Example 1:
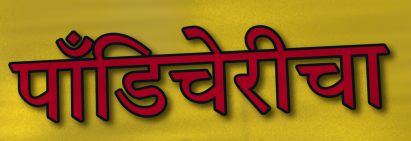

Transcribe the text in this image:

पाँडिचेरीचा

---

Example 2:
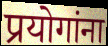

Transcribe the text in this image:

प्रयोगांना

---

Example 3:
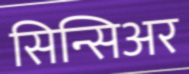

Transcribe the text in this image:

सिन्सिअर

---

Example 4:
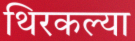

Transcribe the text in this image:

थिरकल्या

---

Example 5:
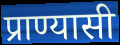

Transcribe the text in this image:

प्राण्यासी